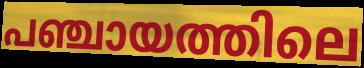
പഞ്ചായത്തിലെ